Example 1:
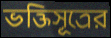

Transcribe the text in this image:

ভক্তিসূত্রের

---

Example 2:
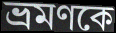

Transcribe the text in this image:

ভ্রমণকে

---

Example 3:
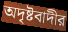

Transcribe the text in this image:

অদৃষ্টবাদীর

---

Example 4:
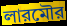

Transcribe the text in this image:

লারমৌর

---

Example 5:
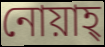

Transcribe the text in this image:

নোয়াহ্